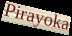
Pirayoka